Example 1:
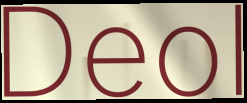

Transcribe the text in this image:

Deol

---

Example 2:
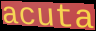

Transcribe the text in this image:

acuta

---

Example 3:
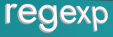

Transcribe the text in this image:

regexp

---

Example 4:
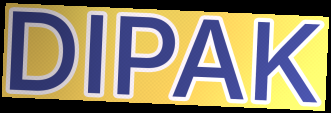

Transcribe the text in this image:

DIPAK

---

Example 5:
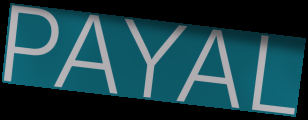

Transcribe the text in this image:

PAYAL